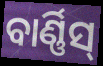
ବାର୍ଣ୍ଣିସ୍